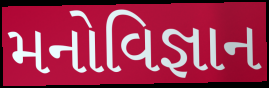
મનોવિજ્ઞાન